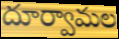
దూర్వామల